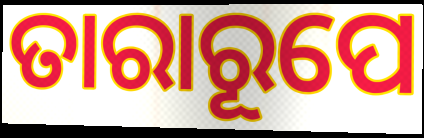
ତାରାରୂପେ